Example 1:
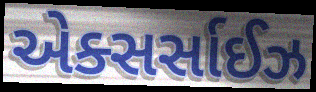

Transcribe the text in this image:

એક્સર્સાઈઝ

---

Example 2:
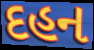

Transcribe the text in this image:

દહન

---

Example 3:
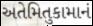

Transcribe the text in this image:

અતેમિતુકામાનં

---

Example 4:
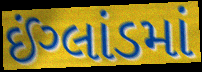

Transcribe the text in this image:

ઈંગ્લાંડમાં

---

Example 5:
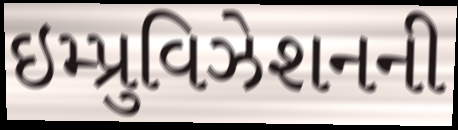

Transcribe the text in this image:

ઇમ્પ્રુવિઝેશનની